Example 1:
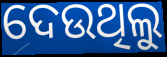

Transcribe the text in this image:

ଦେଉଥିଲୁ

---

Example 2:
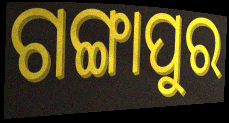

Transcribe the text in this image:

ଗଙ୍ଗାପୁର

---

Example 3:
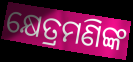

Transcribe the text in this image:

କ୍ଷେତ୍ରମଣିଙ୍କ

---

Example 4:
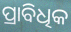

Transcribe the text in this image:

ପ୍ରାବିଧିକ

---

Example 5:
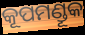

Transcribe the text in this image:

କୂପମଣ୍ଡୂକ